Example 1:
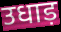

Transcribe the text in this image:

उधाड़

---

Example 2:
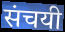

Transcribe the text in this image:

संचयी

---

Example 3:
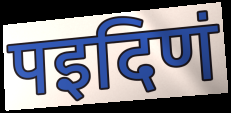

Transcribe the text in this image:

पइदिणं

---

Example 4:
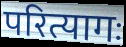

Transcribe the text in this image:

परित्यागः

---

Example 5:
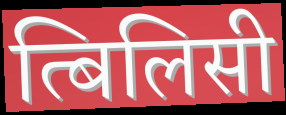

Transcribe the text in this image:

त्बिलिसी